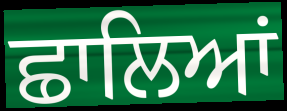
ਛਾਲਿਆਂ